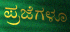
ಪ್ರಜೆಗಳೂ